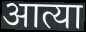
आत्या